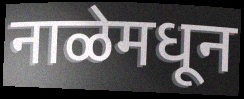
नाळेमधून